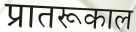
प्रातरूकाल